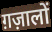
ग़ज़ालों